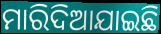
ମାରିଦିଆଯାଇଛି